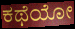
ಕಥೆಯೋ